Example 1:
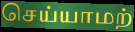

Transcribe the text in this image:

செய்யாமற்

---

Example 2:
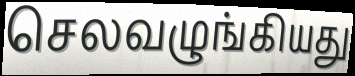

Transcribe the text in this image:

செலவழுங்கியது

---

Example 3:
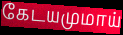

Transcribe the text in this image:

கேடயமுமாய்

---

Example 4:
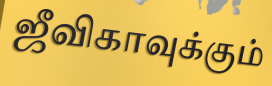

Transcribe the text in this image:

ஜீவிகாவுக்கும்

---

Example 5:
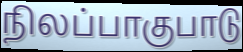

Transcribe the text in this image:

நிலப்பாகுபாடு